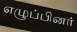
எழுப்பினர்